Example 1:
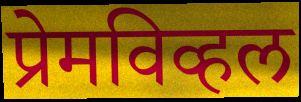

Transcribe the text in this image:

प्रेमविव्हल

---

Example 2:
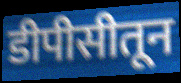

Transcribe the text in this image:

डीपीसीतून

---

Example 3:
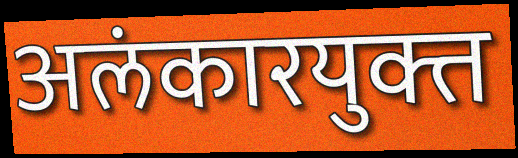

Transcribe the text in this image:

अलंकारयुक्त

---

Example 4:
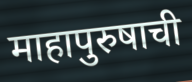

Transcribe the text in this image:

माहापुरुषाची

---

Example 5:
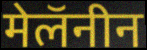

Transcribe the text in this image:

मेलॅनीन